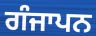
ਗੰਜਾਪਨ